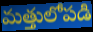
మత్తులోపడి